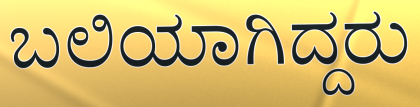
ಬಲಿಯಾಗಿದ್ದರು